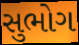
સુભોગ